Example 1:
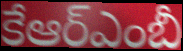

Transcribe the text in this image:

కేఆర్ఎంబీ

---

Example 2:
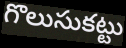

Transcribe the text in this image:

గొలుసుకట్టు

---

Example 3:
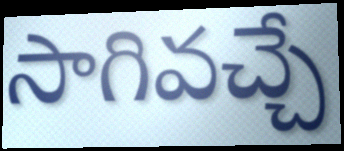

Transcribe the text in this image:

సాగివచ్చే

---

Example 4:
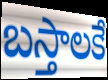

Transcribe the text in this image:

బస్తాలకే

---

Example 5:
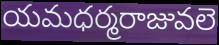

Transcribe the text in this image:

యమధర్మరాజువలె